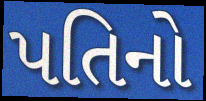
પતિનો